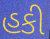
હકી